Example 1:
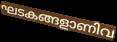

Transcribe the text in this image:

ഘടകങ്ങളാണിവ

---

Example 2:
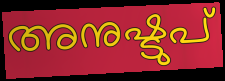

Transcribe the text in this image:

അനുഷ്ടുപ്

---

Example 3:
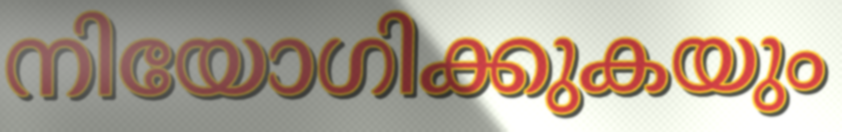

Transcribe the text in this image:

നിയോഗിക്കുകയും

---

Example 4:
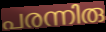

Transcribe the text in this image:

പരന്നിരു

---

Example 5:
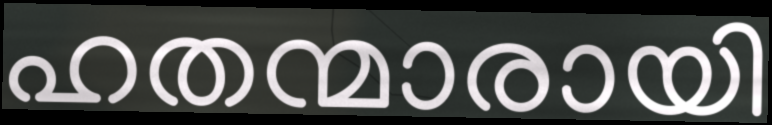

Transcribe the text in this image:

ഹതന്മാരായി